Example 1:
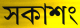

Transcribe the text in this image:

সকাশং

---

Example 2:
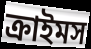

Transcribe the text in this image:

ক্রাইমস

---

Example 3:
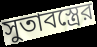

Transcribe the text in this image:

সুতাবস্ত্রের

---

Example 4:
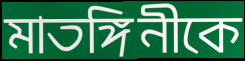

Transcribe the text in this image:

মাতঙ্গিনীকে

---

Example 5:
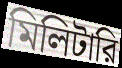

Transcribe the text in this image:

মিলিটারি